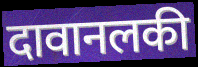
दावानलकी